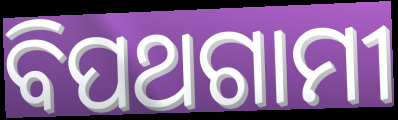
ବିପଥଗାମୀ